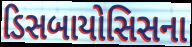
ડિસબાયોસિસના